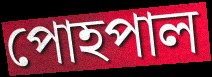
পোহপাল